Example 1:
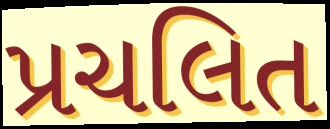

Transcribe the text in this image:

પ્રચલિત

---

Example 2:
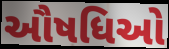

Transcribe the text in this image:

ઔષધિઓ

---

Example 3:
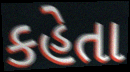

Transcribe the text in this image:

કહેતા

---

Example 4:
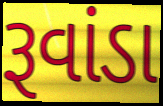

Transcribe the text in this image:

રૂવાંડા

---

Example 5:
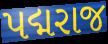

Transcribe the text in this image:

પદ્મરાજ